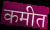
कमीत